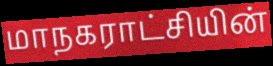
மாநகராட்சியின்